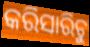
କରିସାରିଚୁ